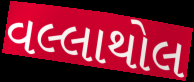
વલ્લાથોલ